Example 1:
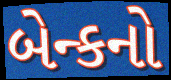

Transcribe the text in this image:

બેન્કનો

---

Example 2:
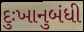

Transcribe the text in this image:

દુઃખાનુબંધી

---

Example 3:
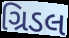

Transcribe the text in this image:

ગ્રિડલ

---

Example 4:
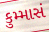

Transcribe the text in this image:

કુમ્માસં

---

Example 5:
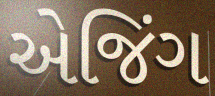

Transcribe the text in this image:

એજિંગ